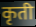
कृती